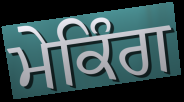
ਮੇਕਿੰਗ